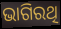
ଭାଗିରଥି